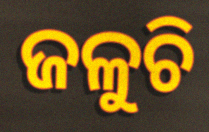
ଜଳୁଚି